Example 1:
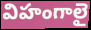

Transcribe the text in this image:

విహంగాలై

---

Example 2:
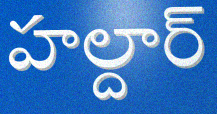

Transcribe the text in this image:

హల్దార్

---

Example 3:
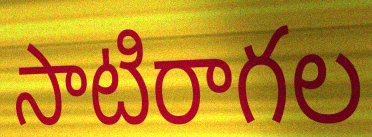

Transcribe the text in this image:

సాటిరాగల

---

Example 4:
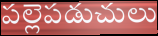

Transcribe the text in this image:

పల్లెపడుచులు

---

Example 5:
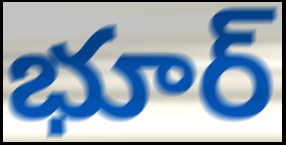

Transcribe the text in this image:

భూర్